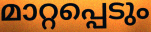
മാറ്റപ്പെടും